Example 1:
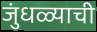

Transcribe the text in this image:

जुंधळ्याची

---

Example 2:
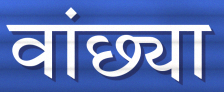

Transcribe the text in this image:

वांछ्या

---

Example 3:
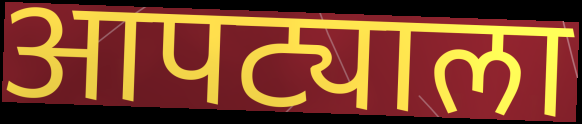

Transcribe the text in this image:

आपट्याला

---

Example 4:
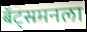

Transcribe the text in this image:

बॅट्समनला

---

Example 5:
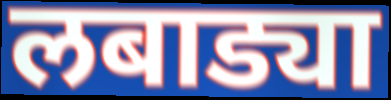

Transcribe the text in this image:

लबाड्या